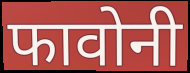
फावोनी